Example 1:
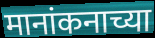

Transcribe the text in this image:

मानांकनाच्या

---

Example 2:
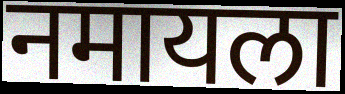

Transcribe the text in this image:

नमायला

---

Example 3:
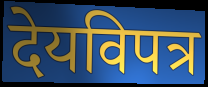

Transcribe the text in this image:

देयविपत्र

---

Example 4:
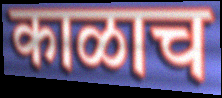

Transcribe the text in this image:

काळाच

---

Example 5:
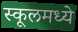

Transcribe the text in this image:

स्कूलमध्ये